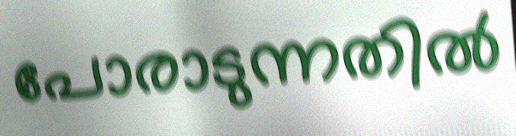
പോരാടുന്നതിൽ